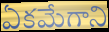
ఏకమేగాని